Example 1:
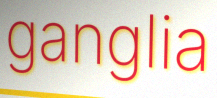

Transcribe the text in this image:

ganglia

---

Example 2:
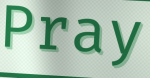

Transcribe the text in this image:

Pray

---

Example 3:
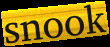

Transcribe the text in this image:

snook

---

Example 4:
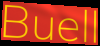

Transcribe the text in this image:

Buell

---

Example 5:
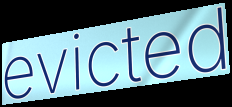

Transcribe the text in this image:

evicted